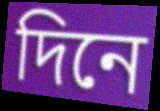
দিনে